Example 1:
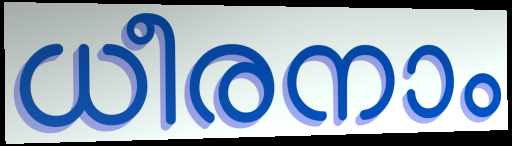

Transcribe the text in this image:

ധീരനാം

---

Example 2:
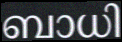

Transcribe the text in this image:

ബാധി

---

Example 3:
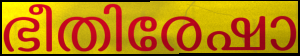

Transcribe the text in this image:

ഭീതിരേഷാ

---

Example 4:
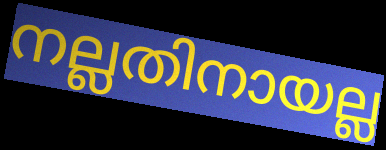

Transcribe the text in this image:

നല്ലതിനായല്ല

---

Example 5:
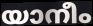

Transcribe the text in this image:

യാനീം